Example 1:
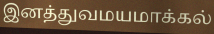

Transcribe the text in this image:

இனத்துவமயமாக்கல்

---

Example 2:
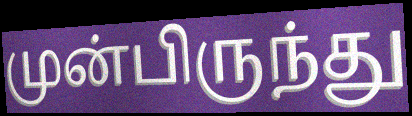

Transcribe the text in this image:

முன்பிருந்து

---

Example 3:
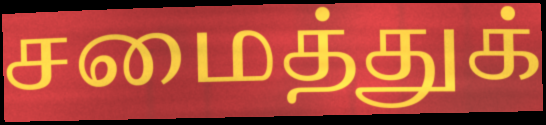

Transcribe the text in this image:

சமைத்துக்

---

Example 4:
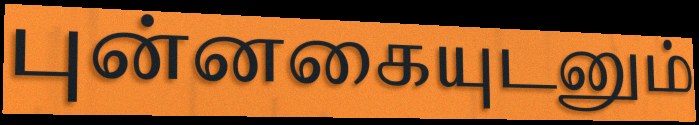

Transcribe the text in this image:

புன்னகையுடனும்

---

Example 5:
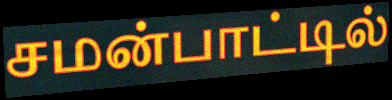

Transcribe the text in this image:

சமன்பாட்டில்